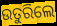
ଉତୁରିଲେ